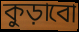
কুড়াবো